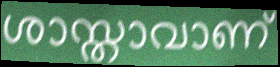
ശാസ്താവാണ്